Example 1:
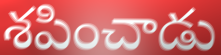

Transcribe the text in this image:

శపించాడు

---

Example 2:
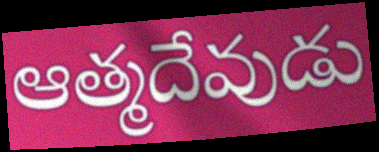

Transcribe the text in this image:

ఆత్మదేవుడు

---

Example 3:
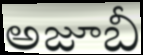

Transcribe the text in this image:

అజూబీ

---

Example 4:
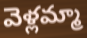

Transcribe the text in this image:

వెళ్లమ్మా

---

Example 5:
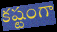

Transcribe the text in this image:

కష్టంగా